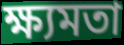
ক্ষ্যমতা